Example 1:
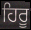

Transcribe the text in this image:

ਹਿਰੂ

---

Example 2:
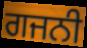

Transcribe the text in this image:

ਗਜਨੀ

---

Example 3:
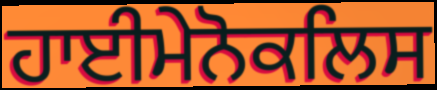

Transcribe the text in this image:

ਹਾਈਮੇਨੋਕਲਿਸ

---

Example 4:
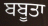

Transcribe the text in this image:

ਬਬੂਤਾ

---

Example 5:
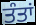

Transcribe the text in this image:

ਤੰਤਾਂ